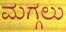
ಮಗ್ಗಲು